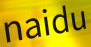
naidu